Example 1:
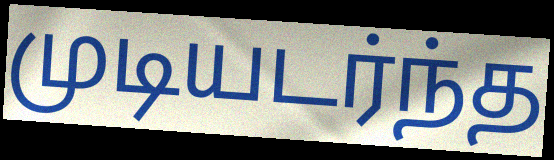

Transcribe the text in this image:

முடியடர்ந்த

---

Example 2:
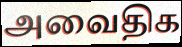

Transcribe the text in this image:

அவைதிக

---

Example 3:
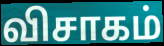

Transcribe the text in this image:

விசாகம்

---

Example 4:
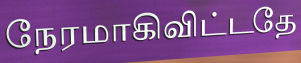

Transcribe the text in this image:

நேரமாகிவிட்டதே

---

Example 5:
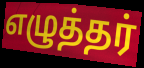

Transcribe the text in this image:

எழுத்தர்